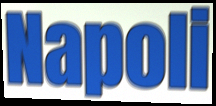
Napoli